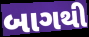
બાગથી